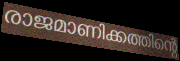
രാജമാണിക്കത്തിന്റെ